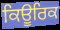
ਕਿਊਰਿਕ